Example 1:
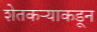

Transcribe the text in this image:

शेतकऱ्याकडून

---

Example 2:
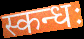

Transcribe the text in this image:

स्कन्धः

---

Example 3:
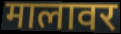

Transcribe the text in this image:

मालावर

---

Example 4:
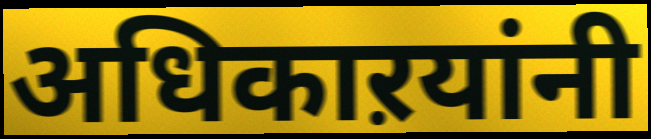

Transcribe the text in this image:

अधिकाऱयांनी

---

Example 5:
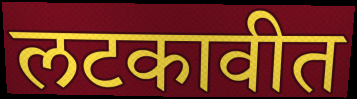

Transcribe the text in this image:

लटकावीत